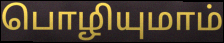
பொழியுமாம்